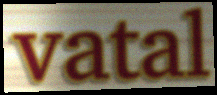
vatal